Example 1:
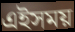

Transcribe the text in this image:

এইসময়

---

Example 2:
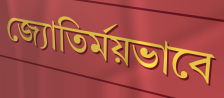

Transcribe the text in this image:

জ্যোতির্ময়ভাবে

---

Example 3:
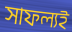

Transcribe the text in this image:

সাফল্যই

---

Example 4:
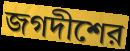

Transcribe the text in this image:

জগদীশের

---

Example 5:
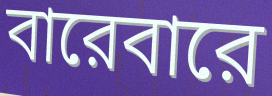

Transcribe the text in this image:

বারেবারে